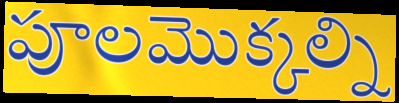
పూలమొక్కల్ని